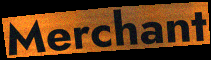
Merchant